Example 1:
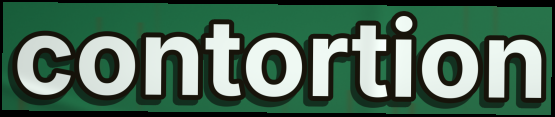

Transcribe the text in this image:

contortion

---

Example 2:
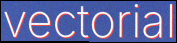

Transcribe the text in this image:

vectorial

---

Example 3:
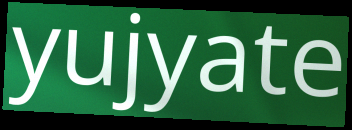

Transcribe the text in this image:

yujyate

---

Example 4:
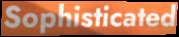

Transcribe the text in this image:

Sophisticated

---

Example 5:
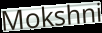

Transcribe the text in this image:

Mokshni